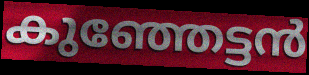
കുഞ്ഞേട്ടൻ